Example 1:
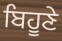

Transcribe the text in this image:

ਬਿਹੂਣੇ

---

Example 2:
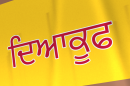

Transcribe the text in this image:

ਦਿਆਕੂਫ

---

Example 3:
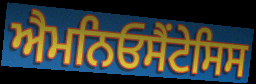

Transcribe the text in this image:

ਐਮਨਿਓਸੈਂਟੇਸਿਸ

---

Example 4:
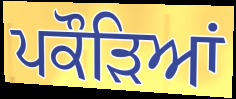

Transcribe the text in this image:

ਪਕੌਡ਼ਿਆਂ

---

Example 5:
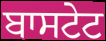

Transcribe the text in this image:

ਬਾਸਟੇਟ